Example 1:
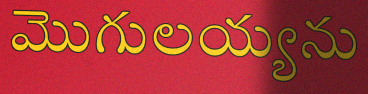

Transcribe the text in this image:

మొగులయ్యను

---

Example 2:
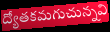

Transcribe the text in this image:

ద్యోతకమగుచున్నవి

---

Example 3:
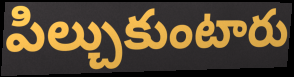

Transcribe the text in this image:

పిల్చుకుంటారు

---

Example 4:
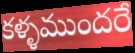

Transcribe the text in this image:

కళ్ళముందరే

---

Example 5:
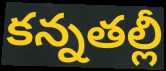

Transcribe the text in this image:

కన్నతల్లీ